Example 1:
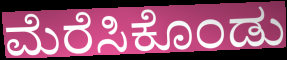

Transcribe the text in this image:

ಮೆರೆಸಿಕೊಂಡು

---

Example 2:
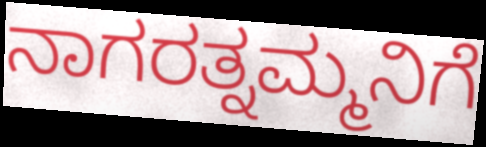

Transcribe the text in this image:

ನಾಗರತ್ನಮ್ಮನಿಗೆ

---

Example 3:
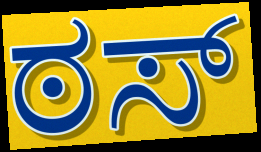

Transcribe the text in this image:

ಠಸ್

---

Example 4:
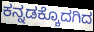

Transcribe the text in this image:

ಕನ್ನಡಕ್ಕೊದಗಿದ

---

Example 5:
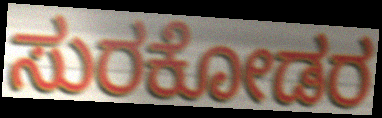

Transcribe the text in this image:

ಸುರಕೋಡರ